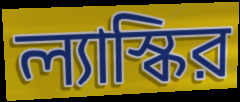
ল্যাস্কির